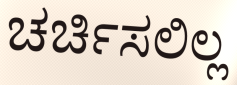
ಚರ್ಚಿಸಲಿಲ್ಲ